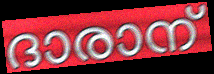
ദാരാന്